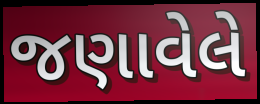
જણાવેલે